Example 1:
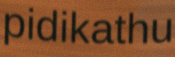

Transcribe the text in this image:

pidikathu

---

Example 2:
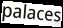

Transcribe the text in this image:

palaces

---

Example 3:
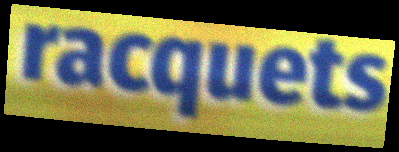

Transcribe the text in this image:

racquets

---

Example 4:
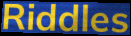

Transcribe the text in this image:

Riddles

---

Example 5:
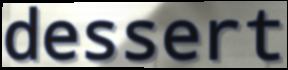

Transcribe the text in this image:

dessert